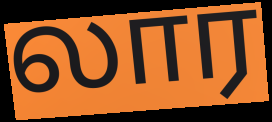
லார